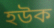
হউক